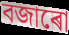
বজাৰো